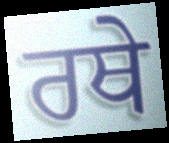
ਰਥੇ